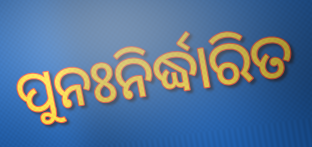
ପୁନଃନିର୍ଦ୍ଧାରିତ